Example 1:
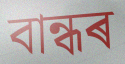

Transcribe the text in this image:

বান্ধৰ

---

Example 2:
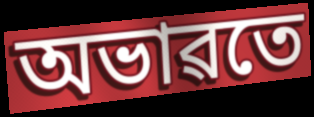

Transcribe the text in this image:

অভাৱতে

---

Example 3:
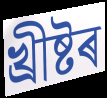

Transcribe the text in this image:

খ্ৰীষ্টৰ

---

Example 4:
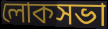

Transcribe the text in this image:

লোকসভা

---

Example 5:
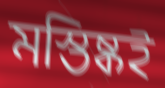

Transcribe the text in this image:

মস্তিষ্কই